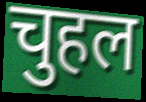
चुहल